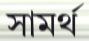
সামৰ্থ